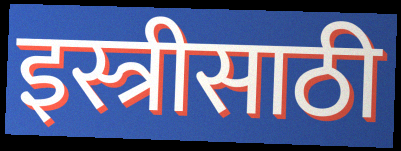
इस्त्रीसाठी